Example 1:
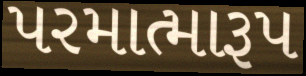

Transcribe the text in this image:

પરમાત્મારૂપ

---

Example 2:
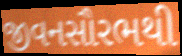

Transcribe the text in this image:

જીવનસૌરભથી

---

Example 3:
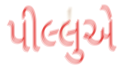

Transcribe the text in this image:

પીલ્લુએ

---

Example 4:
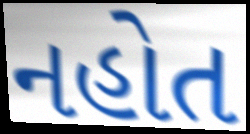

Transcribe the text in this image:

નહોત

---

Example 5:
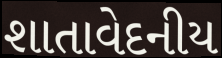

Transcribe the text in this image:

શાતાવેદનીય